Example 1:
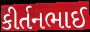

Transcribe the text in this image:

કીર્તનભાઈ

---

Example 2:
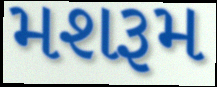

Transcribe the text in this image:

મશરૂમ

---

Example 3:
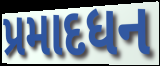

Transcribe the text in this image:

પ્રમાદધન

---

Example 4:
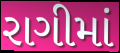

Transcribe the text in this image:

રાગીમાં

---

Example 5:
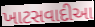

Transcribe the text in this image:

ખાટસવાદીઆ